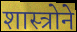
शास्त्रोने